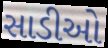
સાડીઓ